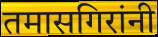
तमासगिरांनी